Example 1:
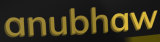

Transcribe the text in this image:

anubhaw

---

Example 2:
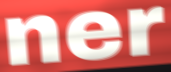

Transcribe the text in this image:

ner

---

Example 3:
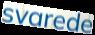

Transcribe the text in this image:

svarede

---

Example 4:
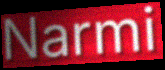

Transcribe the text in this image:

Narmi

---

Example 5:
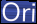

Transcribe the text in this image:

Ori